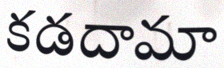
కడదామా